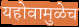
यहोवामुळेच